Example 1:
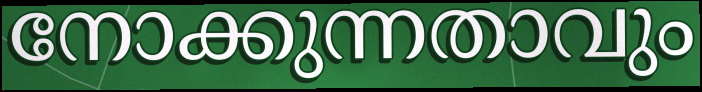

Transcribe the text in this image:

നോക്കുന്നതാവും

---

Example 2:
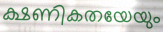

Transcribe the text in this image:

ക്ഷണികതയേയും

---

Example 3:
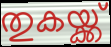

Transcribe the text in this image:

തുകയ്ക്ക്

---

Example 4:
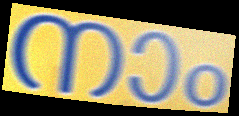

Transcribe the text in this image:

നാം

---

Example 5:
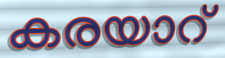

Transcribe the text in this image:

കരയാറ്